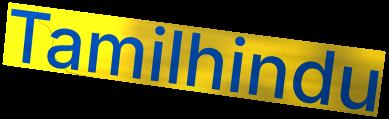
Tamilhindu